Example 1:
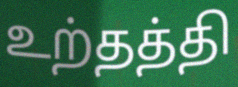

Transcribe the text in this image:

உற்தத்தி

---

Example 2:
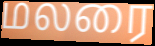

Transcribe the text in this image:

மலரை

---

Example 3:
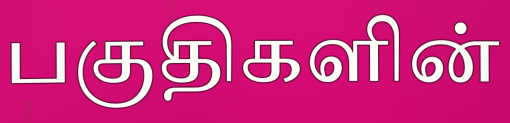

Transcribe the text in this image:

பகுதிகளின்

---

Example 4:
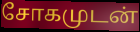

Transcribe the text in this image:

சோகமுடன்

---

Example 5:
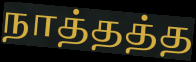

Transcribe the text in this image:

நாத்தத்த